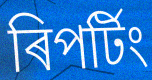
ৰিপৰ্টিং